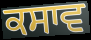
ਕਸਾਵ